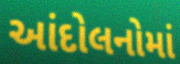
આંદોલનોમાં